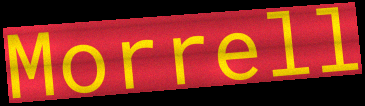
Morrell